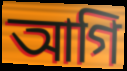
আগি